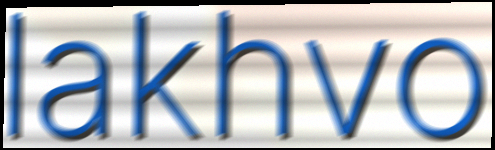
lakhvo